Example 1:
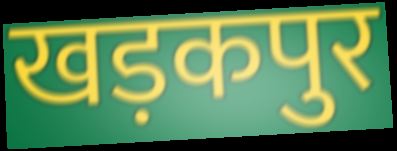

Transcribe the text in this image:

खड़कपुर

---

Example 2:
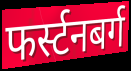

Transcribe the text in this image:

फर्स्टनबर्ग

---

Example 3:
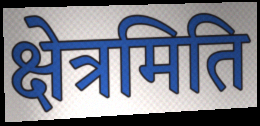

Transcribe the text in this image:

क्षेत्रमिति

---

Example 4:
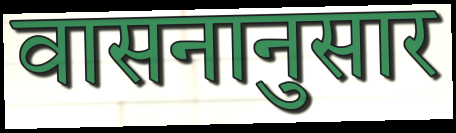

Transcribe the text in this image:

वासनानुसार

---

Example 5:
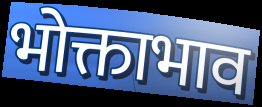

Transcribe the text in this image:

भोक्ताभाव